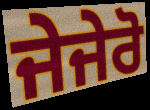
ਜੇਜੇਰੋ